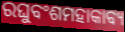
ରଘୁବଂଶମହାକାବ୍ୟ